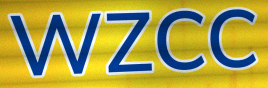
WZCC